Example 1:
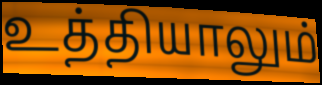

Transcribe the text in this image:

உத்தியாலும்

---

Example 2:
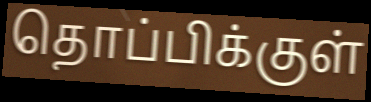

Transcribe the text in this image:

தொப்பிக்குள்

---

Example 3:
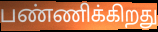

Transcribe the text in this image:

பண்ணிக்கிறது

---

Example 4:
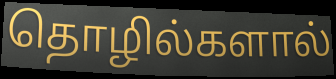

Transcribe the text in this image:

தொழில்களால்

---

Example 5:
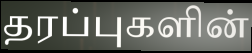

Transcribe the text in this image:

தரப்புகளின்